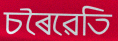
চৰৈৱেতি